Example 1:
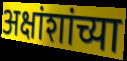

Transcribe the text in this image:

अक्षांशांच्या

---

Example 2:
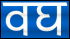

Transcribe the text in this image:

वघ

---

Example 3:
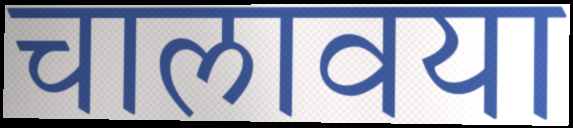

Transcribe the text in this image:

चालावया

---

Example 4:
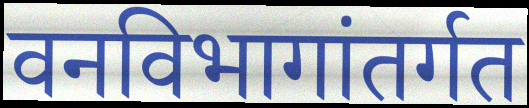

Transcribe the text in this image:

वनविभागांतर्गत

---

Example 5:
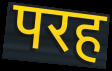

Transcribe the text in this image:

परह